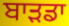
ਬਾੜਡਾ